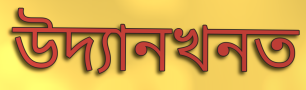
উদ্যানখনত